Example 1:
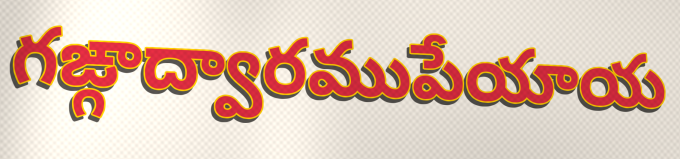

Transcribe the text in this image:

గఙ్గాద్వారముపేయాయ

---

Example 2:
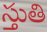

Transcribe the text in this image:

స్తుతి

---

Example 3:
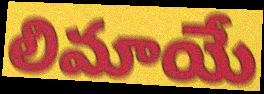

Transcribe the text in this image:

లిమాయే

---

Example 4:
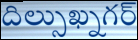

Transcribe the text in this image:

దిల్సుఖ్నగర్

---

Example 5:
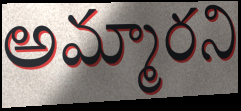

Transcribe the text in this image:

అమ్మారని